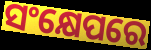
ସଂକ୍ଷେପରେ